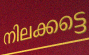
നിലക്കട്ടെ